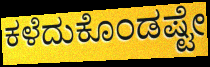
ಕಳೆದುಕೊಂಡಷ್ಟೇ